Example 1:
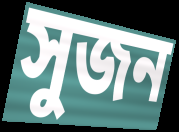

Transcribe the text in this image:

সুজন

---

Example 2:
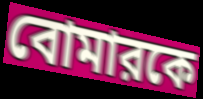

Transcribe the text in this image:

বোমারকে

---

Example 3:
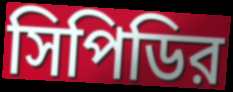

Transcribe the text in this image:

সিপিডির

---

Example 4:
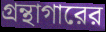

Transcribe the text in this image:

গ্রন্থাগারের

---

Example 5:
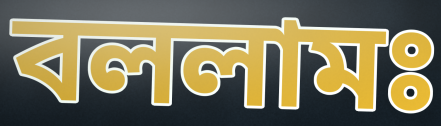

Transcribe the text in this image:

বললামঃ